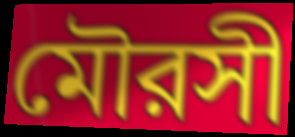
মৌরসী